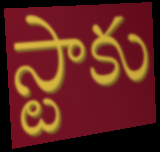
స్టాకు